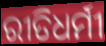
ରୀତିଧର୍ମୀ